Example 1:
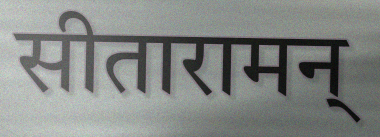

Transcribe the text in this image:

सीतारामन्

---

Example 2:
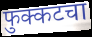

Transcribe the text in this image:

फुक्कटचा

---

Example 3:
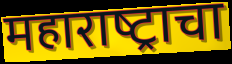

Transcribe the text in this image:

महाराष्ट्राचा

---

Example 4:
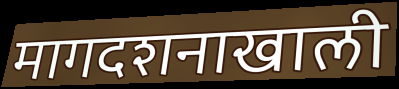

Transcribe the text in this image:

मागदशनाखाली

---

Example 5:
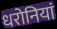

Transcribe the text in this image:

धरोनियां